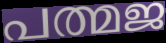
പത്മജ